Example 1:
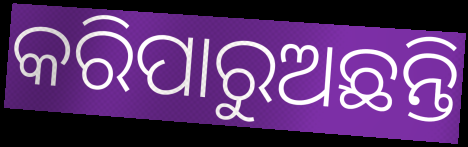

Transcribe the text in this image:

କରିପାରୁଅଛନ୍ତି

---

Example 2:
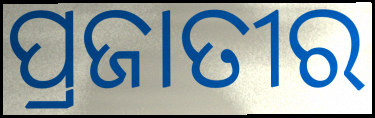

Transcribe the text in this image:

ପ୍ରଜାତୀର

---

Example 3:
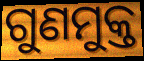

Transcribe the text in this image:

ଗୁଣମୁକ୍ତ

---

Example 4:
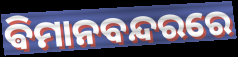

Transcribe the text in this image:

ଵିମାନବନ୍ଦରରେ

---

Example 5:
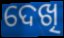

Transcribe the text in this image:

ଦେଖି